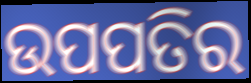
ଉପପତିର